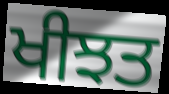
ਖੀਝਤ